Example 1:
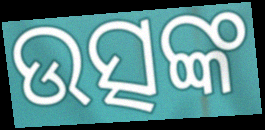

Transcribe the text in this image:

ଉତ୍ସଙ୍କ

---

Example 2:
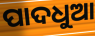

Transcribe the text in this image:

ପାଦଧୁଆ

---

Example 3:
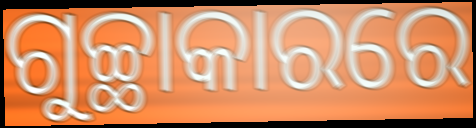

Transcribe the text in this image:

ଗୁଚ୍ଛାକାରରେ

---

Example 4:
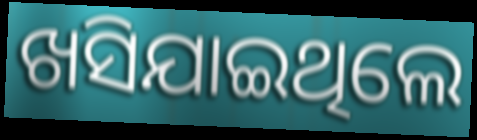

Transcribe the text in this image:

ଖସିଯାଇଥିଲେ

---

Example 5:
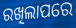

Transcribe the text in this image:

ରଖିଲାପରେ